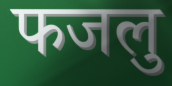
फजलु